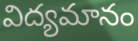
విద్యమానం